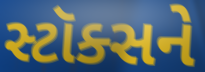
સ્ટૉક્સને